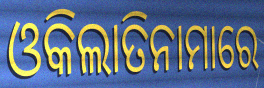
ଓକିଲାତିନାମାରେ